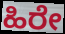
ಹಿರೇ